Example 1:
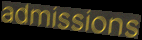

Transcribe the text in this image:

admissions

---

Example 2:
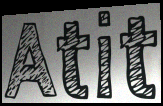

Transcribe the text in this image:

Atit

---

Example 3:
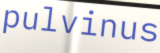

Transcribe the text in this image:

pulvinus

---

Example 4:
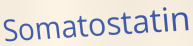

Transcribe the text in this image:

Somatostatin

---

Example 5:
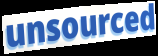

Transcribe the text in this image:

unsourced